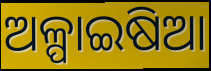
ଅଳ୍ପାଇଷିଆ